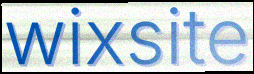
wixsite